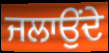
ਜਲਾਉਂਦੇ